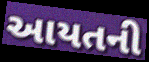
આયતની